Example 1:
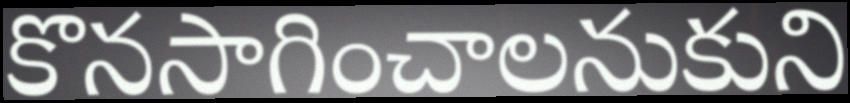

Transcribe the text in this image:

కొనసాగించాలనుకుని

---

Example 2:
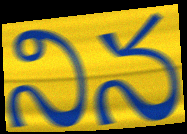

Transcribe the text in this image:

నిన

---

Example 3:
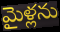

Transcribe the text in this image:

మైళ్లను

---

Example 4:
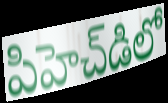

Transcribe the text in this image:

పిహెచ్‌డిలో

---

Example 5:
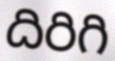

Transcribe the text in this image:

దిరిగి